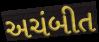
અચંબીત